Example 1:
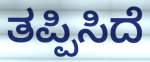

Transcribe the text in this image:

ತಪ್ಪಿಸಿದೆ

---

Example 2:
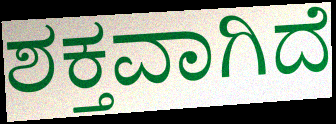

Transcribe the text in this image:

ಶಕ್ತವಾಗಿದೆ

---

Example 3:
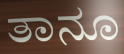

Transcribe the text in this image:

ತಾನೂ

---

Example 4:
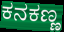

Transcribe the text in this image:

ಕನಕಣ್ಣ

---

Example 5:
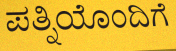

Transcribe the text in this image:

ಪತ್ನಿಯೊಂದಿಗೆ